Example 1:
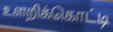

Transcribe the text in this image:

உளறிக்கொட்டி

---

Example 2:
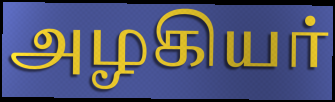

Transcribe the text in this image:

அழகியர்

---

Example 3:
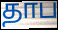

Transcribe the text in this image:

தாப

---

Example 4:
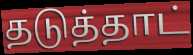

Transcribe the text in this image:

தடுத்தாட்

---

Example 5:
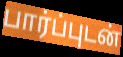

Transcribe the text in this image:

பார்ப்புடன்